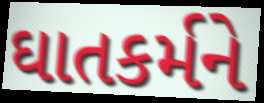
ઘાતકર્મને